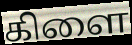
கிளை